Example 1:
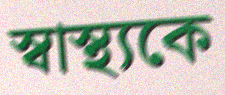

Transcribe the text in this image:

স্বাস্থ্যকে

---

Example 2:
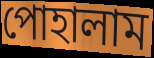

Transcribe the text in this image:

পোহালাম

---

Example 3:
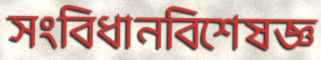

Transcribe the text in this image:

সংবিধানবিশেষজ্ঞ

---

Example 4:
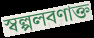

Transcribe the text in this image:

স্বল্পলবণাক্ত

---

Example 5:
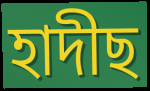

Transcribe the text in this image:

হাদীছ